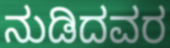
ನುಡಿದವರ